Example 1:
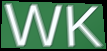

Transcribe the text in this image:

WK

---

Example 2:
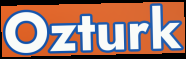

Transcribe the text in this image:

Ozturk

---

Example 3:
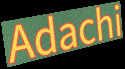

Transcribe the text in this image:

Adachi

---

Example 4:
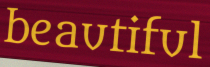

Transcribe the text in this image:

beautiful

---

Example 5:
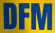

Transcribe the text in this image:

DFM